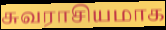
சுவராசியமாக